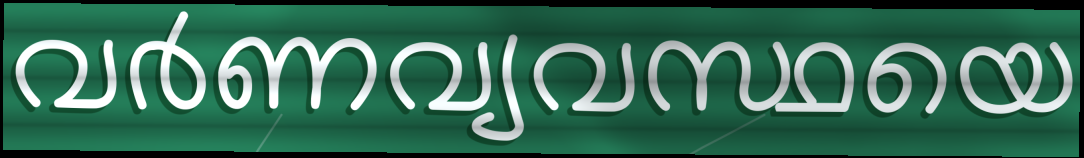
വർണവ്യവസ്ഥയെ